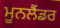
ਮੂਨਲੈਂਡਰ